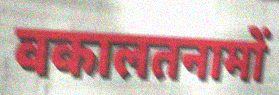
वकालतनामों